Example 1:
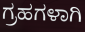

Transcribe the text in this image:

ಗ್ರಹಗಳಾಗಿ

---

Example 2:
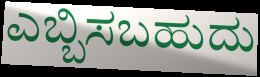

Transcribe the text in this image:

ಎಬ್ಬಿಸಬಹುದು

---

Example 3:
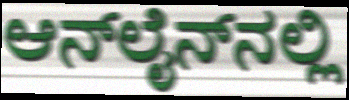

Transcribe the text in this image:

ಆನ್‌ಲೈನ್‌ನಲ್ಲಿ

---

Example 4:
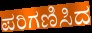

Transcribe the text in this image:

ಪರಿಗಣಿಸಿದ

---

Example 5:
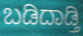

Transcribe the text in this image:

ಬಡಿದಾಡ್ತಿ